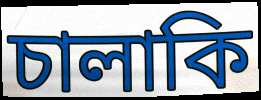
চালাকি